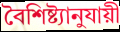
বৈশিষ্ট্যানুযায়ী